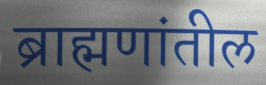
ब्राह्मणांतील